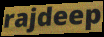
rajdeep